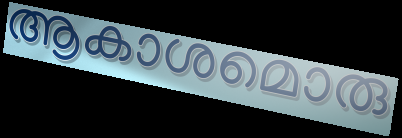
ആകാശമൊരു